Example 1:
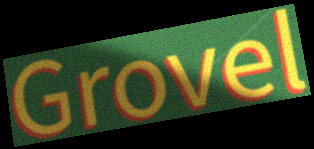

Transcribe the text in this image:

Grovel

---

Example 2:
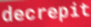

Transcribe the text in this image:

decrepit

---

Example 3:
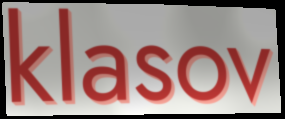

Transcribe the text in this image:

klasov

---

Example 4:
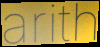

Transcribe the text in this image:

arith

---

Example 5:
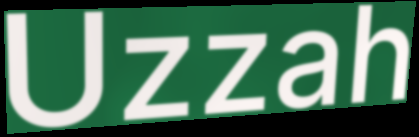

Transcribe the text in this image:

Uzzah